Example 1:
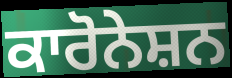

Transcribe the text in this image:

ਕਾਰੋਨੇਸ਼ਨ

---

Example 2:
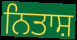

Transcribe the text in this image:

ਨਿਤਾਸ਼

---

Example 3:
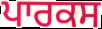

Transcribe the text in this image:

ਪਾਰਕਸ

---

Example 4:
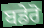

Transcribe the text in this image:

ਬਡੇਰੋ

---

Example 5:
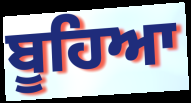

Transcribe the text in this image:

ਬੂਹਿਆ